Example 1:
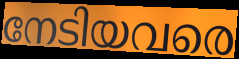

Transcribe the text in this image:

നേടിയവരെ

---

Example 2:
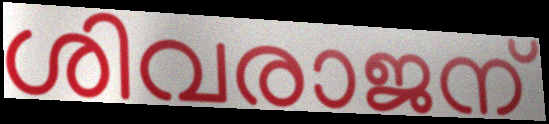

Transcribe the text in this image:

ശിവരാജന്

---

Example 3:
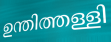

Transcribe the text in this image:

ഉന്തിത്തള്ളി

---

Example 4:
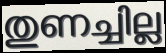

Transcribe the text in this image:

തുണച്ചില്ല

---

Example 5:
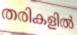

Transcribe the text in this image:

തരികളിൽ